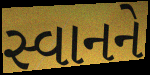
સ્વાનને